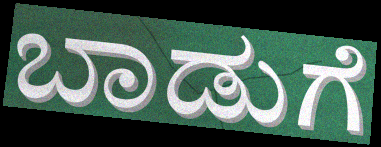
ಬಾಡುಗೆ